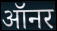
ऑनर